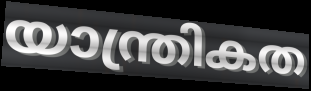
യാന്ത്രികത